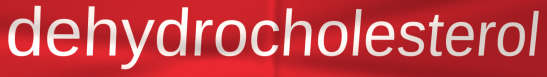
dehydrocholesterol